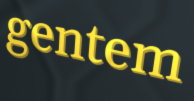
gentem